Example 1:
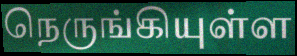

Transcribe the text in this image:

நெருங்கியுள்ள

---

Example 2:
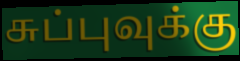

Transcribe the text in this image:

சுப்புவுக்கு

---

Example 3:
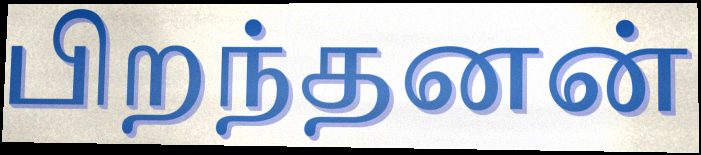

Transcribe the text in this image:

பிறந்தனன்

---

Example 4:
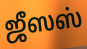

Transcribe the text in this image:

ஜீஸஸ்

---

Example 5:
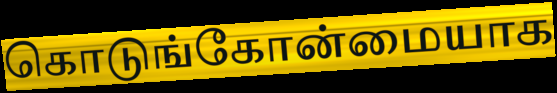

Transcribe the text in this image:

கொடுங்கோன்மையாக